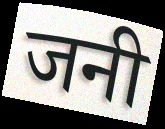
जनी